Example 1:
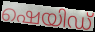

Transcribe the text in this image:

ഷെയിഡ്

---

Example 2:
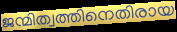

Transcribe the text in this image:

ജന്മിത്വത്തിനെതിരായ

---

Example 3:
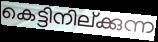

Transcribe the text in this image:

കെട്ടിനില്ക്കുന്ന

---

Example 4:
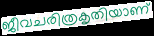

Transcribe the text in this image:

ജീവചരിത്രകൃതിയാണ്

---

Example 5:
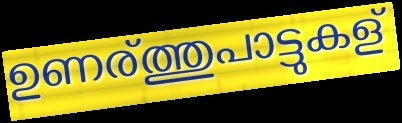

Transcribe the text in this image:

ഉണര്ത്തുപാട്ടുകള്